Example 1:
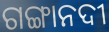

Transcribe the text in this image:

ଗଙ୍ଗାନଦୀ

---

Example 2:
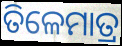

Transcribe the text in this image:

ତିଳେମାତ୍ର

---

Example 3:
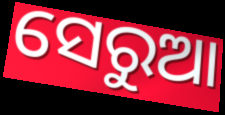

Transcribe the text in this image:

ସେରୁଆ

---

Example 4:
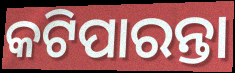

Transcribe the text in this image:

କଟିପାରନ୍ତା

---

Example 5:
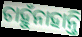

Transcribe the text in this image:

ଚାହୁଁନାହାନ୍ତି